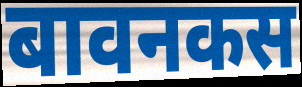
बावनकस